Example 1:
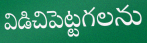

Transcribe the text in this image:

విడిచిపెట్టగలను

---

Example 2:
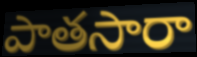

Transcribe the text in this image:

పాతసారా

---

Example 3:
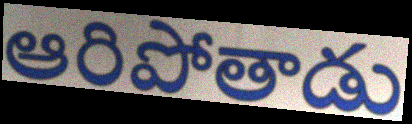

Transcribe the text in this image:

ఆరిపోతాడు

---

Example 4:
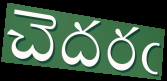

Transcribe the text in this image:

చెదరఁ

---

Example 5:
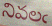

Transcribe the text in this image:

నివలఁ